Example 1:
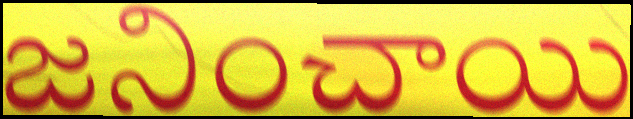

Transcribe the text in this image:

జనించాయి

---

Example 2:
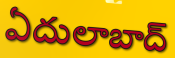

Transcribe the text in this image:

ఏదులాబాద్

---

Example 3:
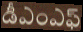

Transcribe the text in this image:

డీఎంఎఫ్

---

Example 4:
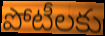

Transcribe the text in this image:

పోటీలకు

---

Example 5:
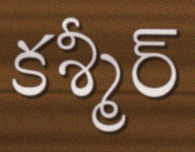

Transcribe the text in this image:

కశ్మీర్